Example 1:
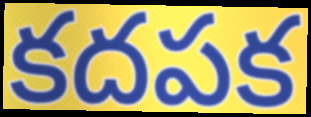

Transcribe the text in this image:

కదపక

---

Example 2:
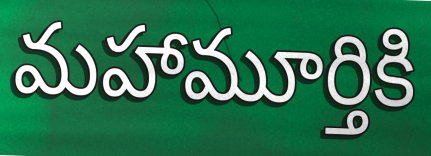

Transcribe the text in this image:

మహామూర్తికి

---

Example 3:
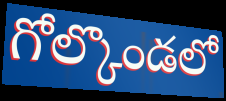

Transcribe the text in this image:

గోల్కొండలో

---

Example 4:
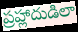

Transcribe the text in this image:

ప్రహ్లాదుడిలా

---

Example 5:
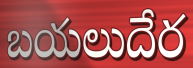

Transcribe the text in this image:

బయలుదేర